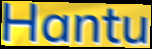
Hantu